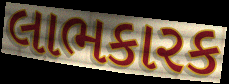
લાભકારક